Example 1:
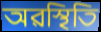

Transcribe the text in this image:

অৱস্থিতি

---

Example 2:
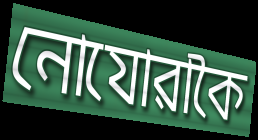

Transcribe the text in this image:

নোযোৱাকৈ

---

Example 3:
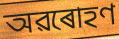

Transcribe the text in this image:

অৱৰোহণ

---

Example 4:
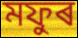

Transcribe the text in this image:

মফুৰ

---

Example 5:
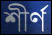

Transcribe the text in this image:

শীৰ্ণ